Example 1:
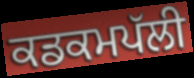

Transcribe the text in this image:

ਕਡਕਮਪੱਲੀ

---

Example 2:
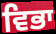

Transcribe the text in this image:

ਵਿਭਾ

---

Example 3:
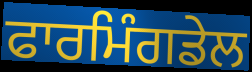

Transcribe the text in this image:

ਫਾਰਮਿੰਗਡੇਲ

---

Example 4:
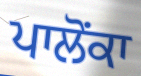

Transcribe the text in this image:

ਪਾਲੋਂਕਾ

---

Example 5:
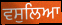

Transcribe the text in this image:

ਵਸੁਲਿਆ